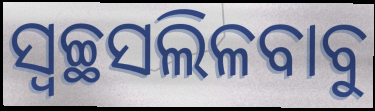
ସ୍ୱଚ୍ଛସଲିଳବାବୁ